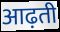
आढ़ती